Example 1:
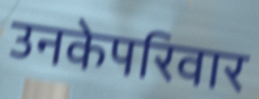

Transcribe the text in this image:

उनकेपरिवार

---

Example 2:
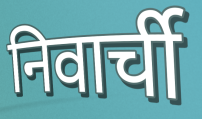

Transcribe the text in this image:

निवार्ची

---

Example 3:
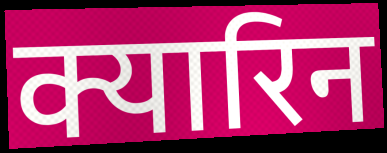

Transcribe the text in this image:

क्यारिन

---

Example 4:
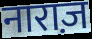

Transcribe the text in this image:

नाराज़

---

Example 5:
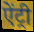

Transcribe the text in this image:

ऐंट्री